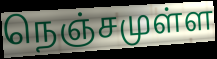
நெஞ்சமுள்ள